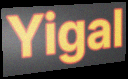
Yigal